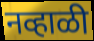
नव्हाळी